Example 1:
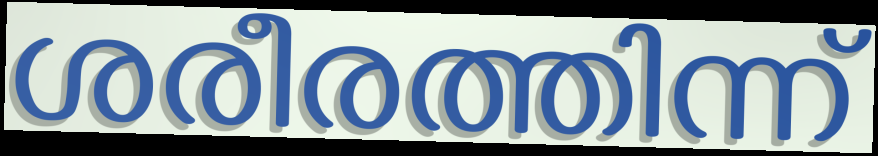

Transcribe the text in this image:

ശരീരത്തിന്ന്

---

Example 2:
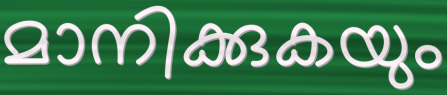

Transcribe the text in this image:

മാനിക്കുകയും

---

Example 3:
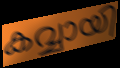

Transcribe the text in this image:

കവ്വായി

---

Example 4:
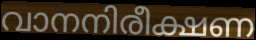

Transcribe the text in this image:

വാനനിരീക്ഷണ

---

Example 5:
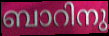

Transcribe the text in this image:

ബാറിനു